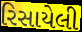
રિસાયેલી